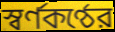
স্বর্ণকণ্ঠের